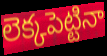
లెక్కపెట్టినా